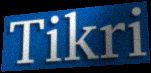
Tikri